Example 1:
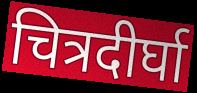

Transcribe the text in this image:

चित्रदीर्घा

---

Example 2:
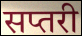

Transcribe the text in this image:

सप्तरी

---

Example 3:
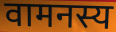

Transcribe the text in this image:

वामनस्य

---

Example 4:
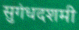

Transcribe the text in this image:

सुगंधदशमी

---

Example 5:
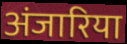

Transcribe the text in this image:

अंजारिया